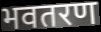
भवतरण